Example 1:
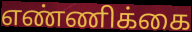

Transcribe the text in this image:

எண்ணிக்கை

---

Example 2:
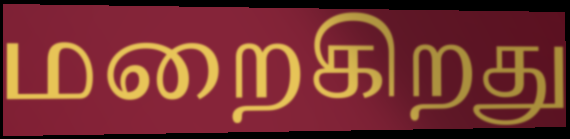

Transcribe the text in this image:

மறைகிறது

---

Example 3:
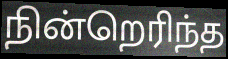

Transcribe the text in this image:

நின்றெரிந்த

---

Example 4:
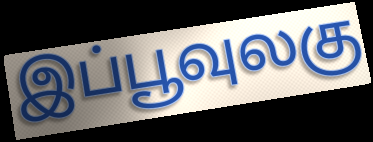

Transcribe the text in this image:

இப்பூவுலகு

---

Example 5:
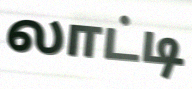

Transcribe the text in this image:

லாட்டி